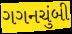
ગગનચુંબી